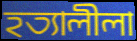
হত্যালীলা